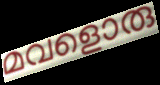
മവളൊരു